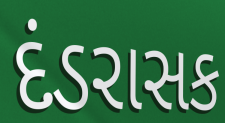
દંડરાસક